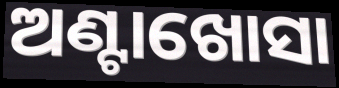
ଅଣ୍ଟାଖୋସା